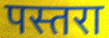
पस्तरा